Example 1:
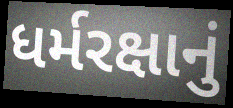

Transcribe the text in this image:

ધર્મરક્ષાનું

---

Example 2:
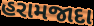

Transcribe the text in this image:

હરામજાદા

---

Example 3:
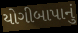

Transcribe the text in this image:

યોગીબાપાનું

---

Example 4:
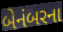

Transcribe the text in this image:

બેનંબરના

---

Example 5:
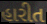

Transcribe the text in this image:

હારીત